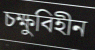
চক্ষুবিহীন